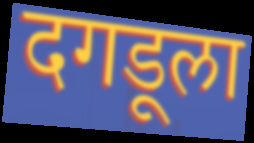
दगडूला